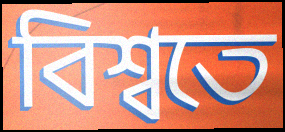
বিশ্বতে